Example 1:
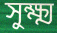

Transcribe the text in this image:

সুক্ষ্ম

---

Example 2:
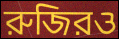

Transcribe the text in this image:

রুজিরও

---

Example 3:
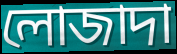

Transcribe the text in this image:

লোজাদা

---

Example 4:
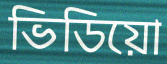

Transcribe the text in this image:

ভিডিয়ো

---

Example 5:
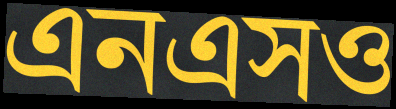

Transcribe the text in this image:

এনএসও